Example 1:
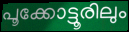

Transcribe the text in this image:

പൂക്കോട്ടൂരിലും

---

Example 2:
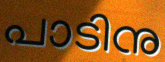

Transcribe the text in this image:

പാടിനു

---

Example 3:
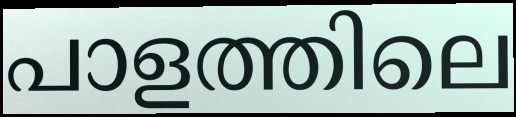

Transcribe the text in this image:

പാളത്തിലെ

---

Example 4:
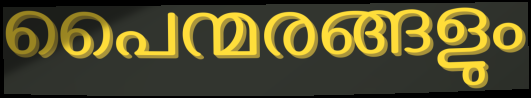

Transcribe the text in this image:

പൈന്മരങ്ങളും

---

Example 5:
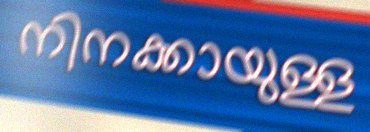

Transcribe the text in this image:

നിനക്കായുള്ള